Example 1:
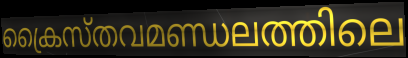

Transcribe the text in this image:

ക്രൈസ്തവമണ്ഡലത്തിലെ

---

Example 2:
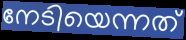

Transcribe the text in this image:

നേടിയെന്നത്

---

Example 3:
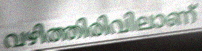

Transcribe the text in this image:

വഴിത്തിരിവിലാണ്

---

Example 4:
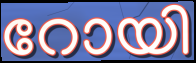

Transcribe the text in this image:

റോയി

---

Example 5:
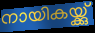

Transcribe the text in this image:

നായികയ്ക്കു്